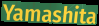
Yamashita